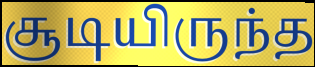
சூடியிருந்த